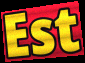
Est